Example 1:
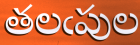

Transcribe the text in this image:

తలఁపుల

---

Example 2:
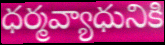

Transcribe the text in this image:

ధర్మవ్యాధునికి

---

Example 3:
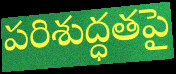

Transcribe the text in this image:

పరిశుద్ధతపై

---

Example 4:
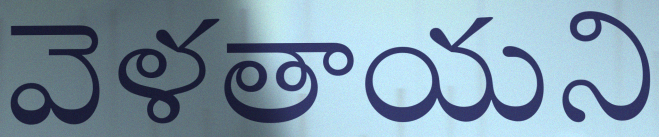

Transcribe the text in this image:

వెళతాయని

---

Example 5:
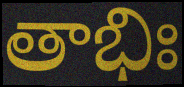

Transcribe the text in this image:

తాభిః